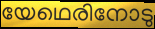
യേഥെരിനോടു